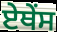
ਏਥੇਂਸ